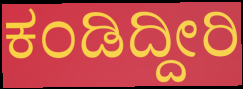
ಕಂಡಿದ್ದೀರಿ